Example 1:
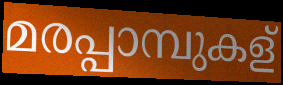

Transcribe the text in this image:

മരപ്പാമ്പുകള്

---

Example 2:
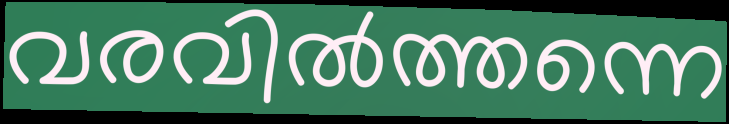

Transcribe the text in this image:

വരവിൽത്തന്നെ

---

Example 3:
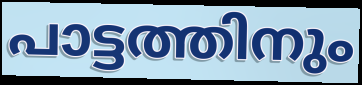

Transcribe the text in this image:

പാട്ടത്തിനും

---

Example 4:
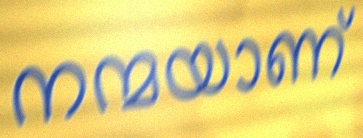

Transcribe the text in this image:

നന്മയാണ്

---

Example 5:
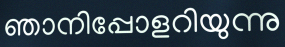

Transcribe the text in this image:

ഞാനിപ്പോളറിയുന്നു